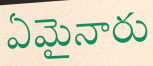
ఏమైనారు